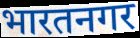
भारतनगर